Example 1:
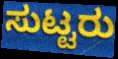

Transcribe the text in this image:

ಸುಟ್ಟರು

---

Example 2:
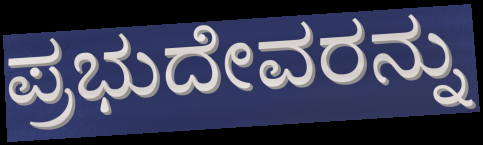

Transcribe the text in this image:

ಪ್ರಭುದೇವರನ್ನು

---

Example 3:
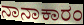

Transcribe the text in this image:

ನಾನಾಕಾರಂ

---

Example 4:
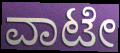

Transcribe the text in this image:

ವಾಟೇ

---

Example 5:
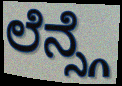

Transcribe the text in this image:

ಲೆನ್ಸ್ಗೆ